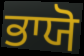
ਭਾਯੋ